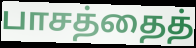
பாசத்தைத்